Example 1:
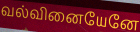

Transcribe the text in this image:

வல்வினையேனே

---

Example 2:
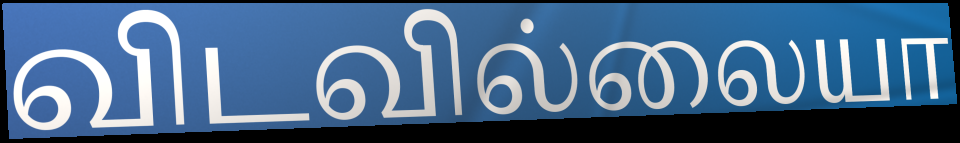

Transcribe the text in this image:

விடவில்லையா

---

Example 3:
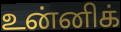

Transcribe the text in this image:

உன்னிக்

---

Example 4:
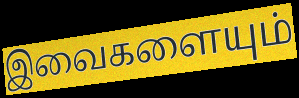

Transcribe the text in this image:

இவைகளையும்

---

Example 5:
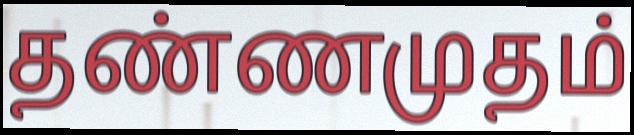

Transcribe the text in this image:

தண்ணமுதம்